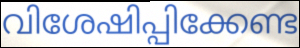
വിശേഷിപ്പിക്കേണ്ട